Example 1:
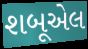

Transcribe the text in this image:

શબૂએલ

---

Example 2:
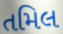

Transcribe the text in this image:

તમિલ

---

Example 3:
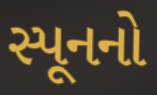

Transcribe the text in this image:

સ્પૂનનો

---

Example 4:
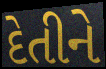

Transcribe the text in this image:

દેતીને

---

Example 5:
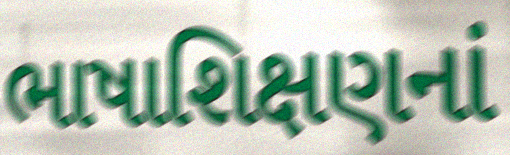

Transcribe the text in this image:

ભાષાશિક્ષણનાં